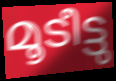
മൂടീട്ടു